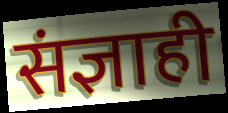
संज्ञाही